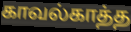
காவல்காத்த